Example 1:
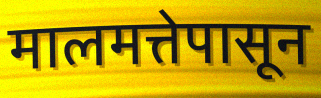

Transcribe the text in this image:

मालमत्तेपासून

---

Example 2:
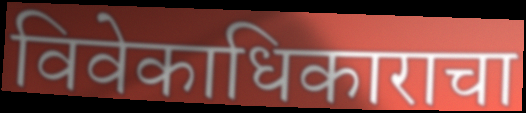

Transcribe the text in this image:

विवेकाधिकाराचा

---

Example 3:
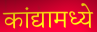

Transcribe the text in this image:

कांद्यामध्ये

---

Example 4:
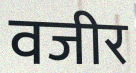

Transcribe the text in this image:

वजीर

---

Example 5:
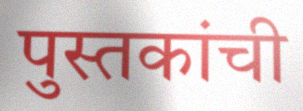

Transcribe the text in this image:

पुस्तकांची